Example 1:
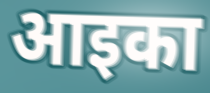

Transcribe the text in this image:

आइका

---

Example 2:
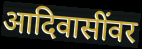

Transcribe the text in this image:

आदिवासींवर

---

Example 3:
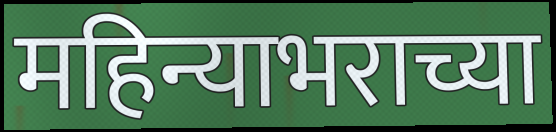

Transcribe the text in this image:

महिन्याभराच्या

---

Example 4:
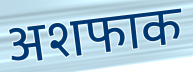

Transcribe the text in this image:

अशफाक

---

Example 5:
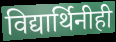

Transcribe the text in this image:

विद्यार्थिनीही